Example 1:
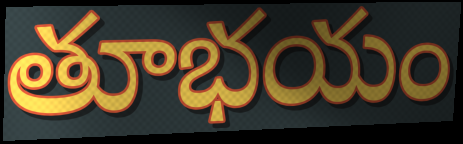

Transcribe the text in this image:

తూభయం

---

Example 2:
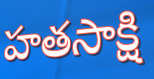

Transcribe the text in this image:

హతసాక్షి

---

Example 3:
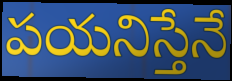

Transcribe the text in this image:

పయనిస్తేనే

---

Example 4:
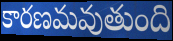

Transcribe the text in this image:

కారణమవుతుంది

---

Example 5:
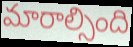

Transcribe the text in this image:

మారాల్సింది